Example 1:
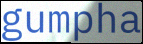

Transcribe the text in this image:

gumpha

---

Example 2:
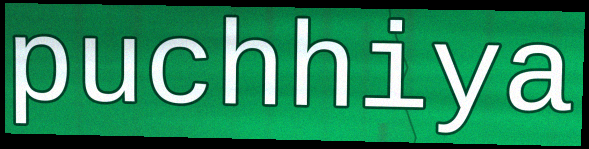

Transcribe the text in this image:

puchhiya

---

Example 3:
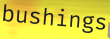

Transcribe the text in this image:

bushings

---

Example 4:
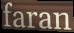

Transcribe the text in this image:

faran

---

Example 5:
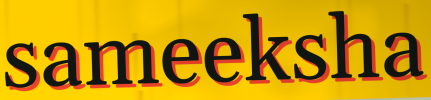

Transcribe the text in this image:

sameeksha